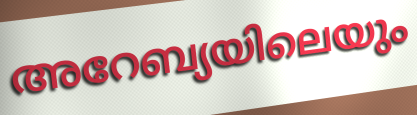
അറേബ്യയിലെയും